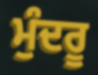
ਮੁੰਦਰੂ